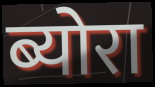
ब्योरा